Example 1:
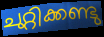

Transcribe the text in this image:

ചുറ്റിക്കണ്ടു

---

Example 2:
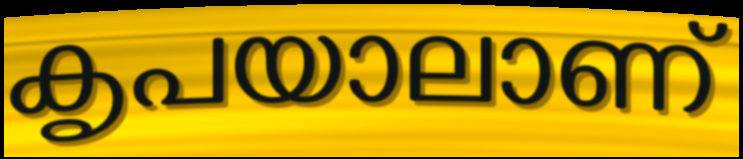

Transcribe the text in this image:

കൃപയാലാണ്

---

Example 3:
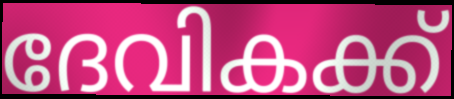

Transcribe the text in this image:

ദേവികക്ക്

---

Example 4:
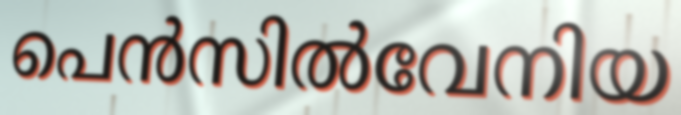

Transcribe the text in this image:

പെൻസിൽവേനിയ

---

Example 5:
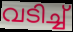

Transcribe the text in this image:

വടിച്ച്